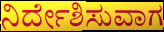
ನಿರ್ದೇಶಿಸುವಾಗ